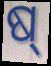
ଷ୍